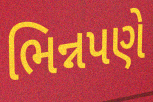
ભિન્નપણે